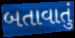
બતાવાતું